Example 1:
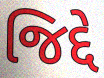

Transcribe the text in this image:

જિદ્દે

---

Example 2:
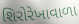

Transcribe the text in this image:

શિરોરેખાવાળા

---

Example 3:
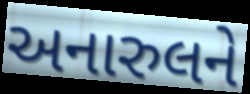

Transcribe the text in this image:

અનારુલને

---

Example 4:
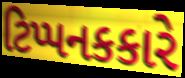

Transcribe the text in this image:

ટિપ્પનકકારે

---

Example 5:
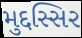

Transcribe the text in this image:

મુદ્દસ્સિર